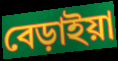
বেড়াইয়া